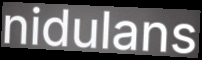
nidulans